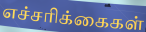
எச்சரிக்கைகள்